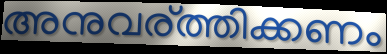
അനുവര്ത്തിക്കണം